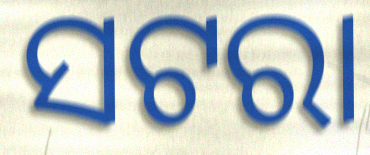
ସଟରା